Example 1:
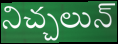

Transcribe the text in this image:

నిచ్చలున్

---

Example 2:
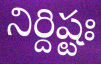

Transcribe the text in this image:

నిర్దిష్టః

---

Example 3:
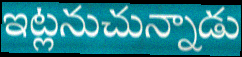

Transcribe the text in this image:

ఇట్లనుచున్నాడు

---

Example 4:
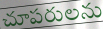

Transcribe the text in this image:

చూపరులను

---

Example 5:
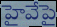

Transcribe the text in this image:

హైవేపై